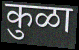
कुळा